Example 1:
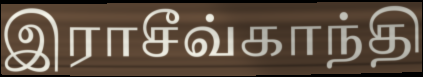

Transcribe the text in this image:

இராசீவ்காந்தி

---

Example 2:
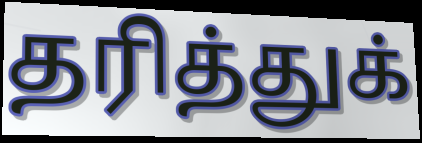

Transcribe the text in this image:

தரித்துக்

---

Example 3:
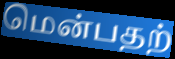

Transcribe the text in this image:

மென்பதற்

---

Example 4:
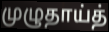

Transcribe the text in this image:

முழுதாய்த்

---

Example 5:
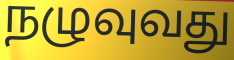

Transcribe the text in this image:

நழுவுவது